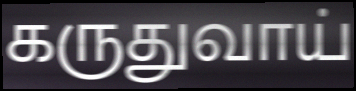
கருதுவாய்